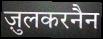
ज़ुलकरनैन